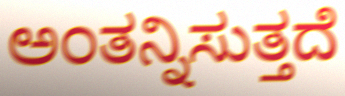
ಅಂತನ್ನಿಸುತ್ತದೆ